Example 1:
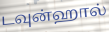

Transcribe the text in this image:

டவுன்ஹால்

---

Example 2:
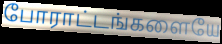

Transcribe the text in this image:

போராட்டங்களையே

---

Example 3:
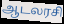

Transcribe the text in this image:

ஆடலரசி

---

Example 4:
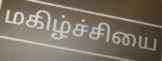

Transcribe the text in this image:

மகிழ்ச்சியை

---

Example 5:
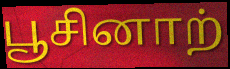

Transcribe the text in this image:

பூசினாற்